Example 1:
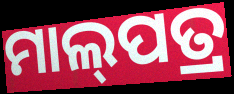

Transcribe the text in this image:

ମାଲ୍‌ପତ୍ର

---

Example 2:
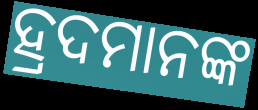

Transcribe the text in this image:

ହ୍ରଦମାନଙ୍କ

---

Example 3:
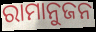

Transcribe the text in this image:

ରାମାନୁଜନ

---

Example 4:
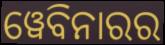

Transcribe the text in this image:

ୱେବିନାରର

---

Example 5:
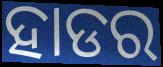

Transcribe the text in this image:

ହାଡର